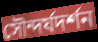
সৌন্দর্যদর্শন